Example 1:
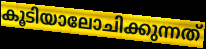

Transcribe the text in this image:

കൂടിയാലോചിക്കുന്നത്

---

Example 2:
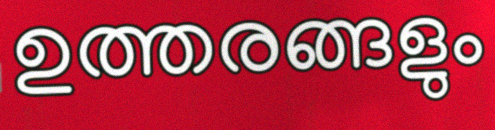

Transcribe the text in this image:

ഉത്തരങ്ങളും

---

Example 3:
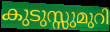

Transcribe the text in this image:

കുടുസ്സുമുറി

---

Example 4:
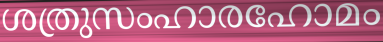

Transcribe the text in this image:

ശത്രുസംഹാരഹോമം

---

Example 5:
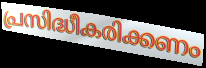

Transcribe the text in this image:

പ്രസിദ്ധീകരിക്കണം